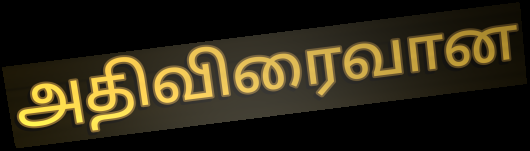
அதிவிரைவான